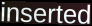
inserted